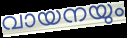
വായനയും